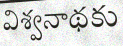
విశ్వనాథకు